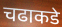
चढाकडे